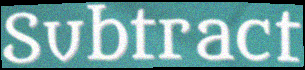
Subtract